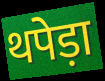
थपेड़ा